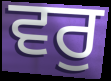
ਵਰੁ